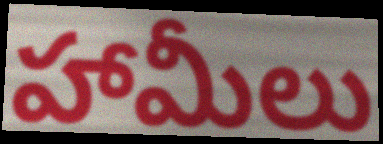
హామీలు